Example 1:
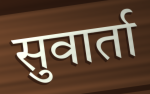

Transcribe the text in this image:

सुवार्ता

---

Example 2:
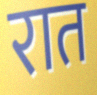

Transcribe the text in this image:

रात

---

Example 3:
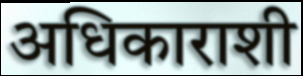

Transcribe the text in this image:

अधिकाराशी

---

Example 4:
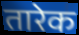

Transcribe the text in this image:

तारेक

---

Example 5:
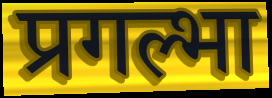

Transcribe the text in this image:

प्रगल्भा